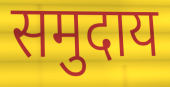
समुदाय